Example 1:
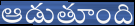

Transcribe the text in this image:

ఆడుతూంది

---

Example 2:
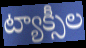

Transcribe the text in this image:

ట్యాక్సీల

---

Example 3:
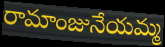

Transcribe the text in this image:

రామాంజునేయమ్మ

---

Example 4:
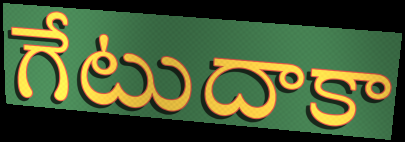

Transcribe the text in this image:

గేటుదాకా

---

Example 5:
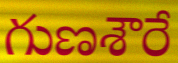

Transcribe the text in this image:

గుణశౌరే